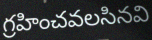
గ్రహించవలసినవి